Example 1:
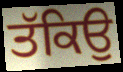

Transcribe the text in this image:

ਤੱਕਿਉ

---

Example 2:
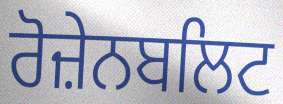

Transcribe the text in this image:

ਰੋਜ਼ੇਨਬਲਿਟ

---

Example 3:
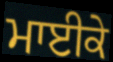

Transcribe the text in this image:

ਮਾਈਕੇ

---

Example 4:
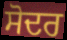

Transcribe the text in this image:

ਸੋਦਰ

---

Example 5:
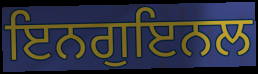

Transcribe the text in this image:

ਇਨਗੁਇਨਲ